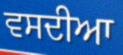
ਵਸਦੀਆ